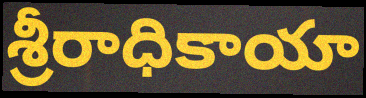
శ్రీరాధికాయా